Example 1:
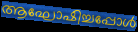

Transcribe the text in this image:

ആഘോഷിച്ചപ്പോൾ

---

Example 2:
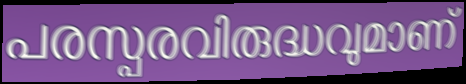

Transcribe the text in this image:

പരസ്പരവിരുദ്ധവുമാണ്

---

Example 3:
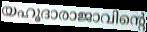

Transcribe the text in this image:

യഹൂദാരാജാവിന്റെ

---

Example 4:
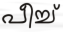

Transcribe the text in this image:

പീച്ച്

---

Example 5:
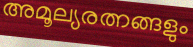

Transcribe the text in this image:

അമൂല്യരത്നങ്ങളും